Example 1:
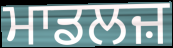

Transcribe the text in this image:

ਮਾਡਲਜ਼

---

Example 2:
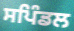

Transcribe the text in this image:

ਸਪਿੰਡਲ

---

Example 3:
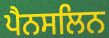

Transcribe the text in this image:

ਪੈਨਸਲਿਨ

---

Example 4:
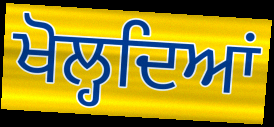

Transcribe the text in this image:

ਖੋਲ੍ਹਦਿਆਂ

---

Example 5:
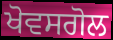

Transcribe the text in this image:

ਖੋਵਸਗੋਲ